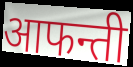
आफन्ती